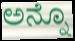
ಅನ್ನೊ